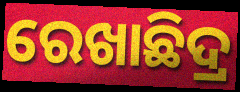
ରେଖାଛିଦ୍ର